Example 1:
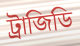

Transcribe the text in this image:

ট্রাজিডি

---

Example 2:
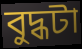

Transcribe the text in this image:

বুদ্ধটা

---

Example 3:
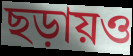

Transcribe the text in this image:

ছড়ায়ও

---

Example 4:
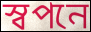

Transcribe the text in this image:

স্বপনে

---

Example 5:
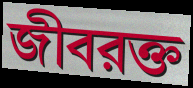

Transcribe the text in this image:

জীবরক্ত